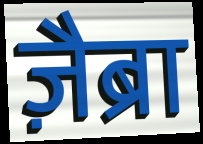
ज़ैब्रा